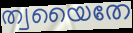
ത്വയൈതേ